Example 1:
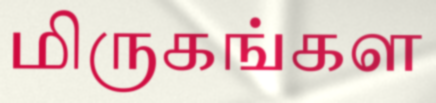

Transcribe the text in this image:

மிருகங்கள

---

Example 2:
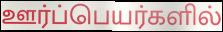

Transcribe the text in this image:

ஊர்ப்பெயர்களில்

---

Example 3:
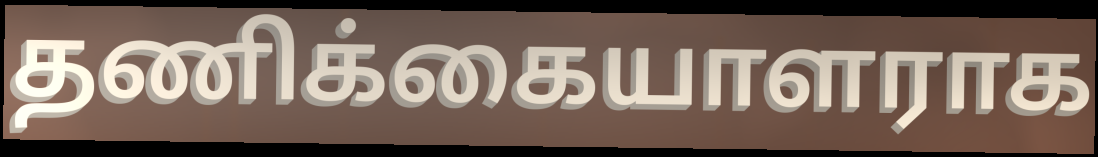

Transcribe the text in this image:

தணிக்கையாளராக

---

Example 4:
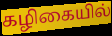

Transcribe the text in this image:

கழிகையில்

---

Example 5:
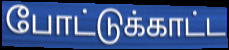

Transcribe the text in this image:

போட்டுக்காட்ட